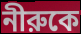
নীরুকে